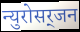
न्युरोसर्जन